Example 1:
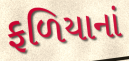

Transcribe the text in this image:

ફળિયાનાં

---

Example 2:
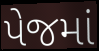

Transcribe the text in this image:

પેજમાં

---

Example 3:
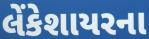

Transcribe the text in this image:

લેંકેશાયરના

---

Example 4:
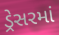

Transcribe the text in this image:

ડ્રેસરમાં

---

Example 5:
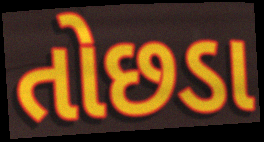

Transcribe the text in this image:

તોછડા